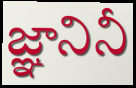
జ్ఞానినీ